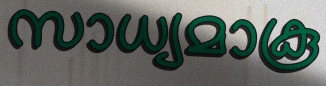
സാധ്യമാകൂ